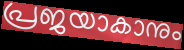
പ്രജയാകാനും